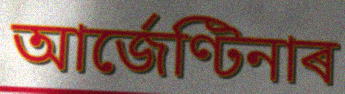
আৰ্জেণ্টিনাৰ